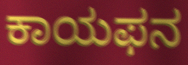
ಕಾಯಫನ